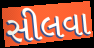
સીલવા